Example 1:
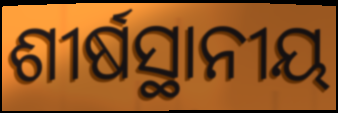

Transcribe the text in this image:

ଶୀର୍ଷସ୍ଥାନୀୟ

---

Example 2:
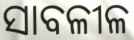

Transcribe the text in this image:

ସାବଳୀଳ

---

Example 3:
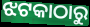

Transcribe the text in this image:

ଝଟକାଠାରୁ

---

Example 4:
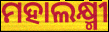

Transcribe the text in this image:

ମହାଲକ୍ଷ୍ମୀ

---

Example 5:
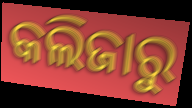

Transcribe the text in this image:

କଲିଜାରୁ